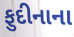
ફુદીનાના